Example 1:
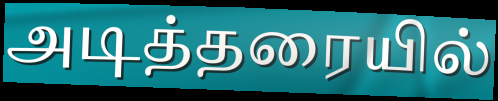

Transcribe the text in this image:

அடித்தரையில்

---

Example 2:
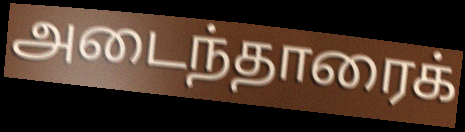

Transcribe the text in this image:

அடைந்தாரைக்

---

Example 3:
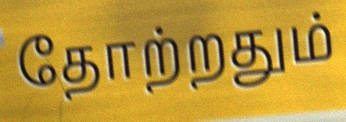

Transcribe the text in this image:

தோற்றதும்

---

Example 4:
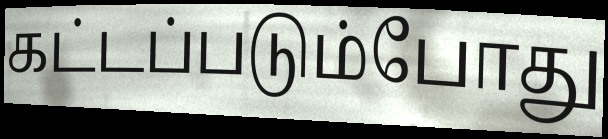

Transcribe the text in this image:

கட்டப்படும்போது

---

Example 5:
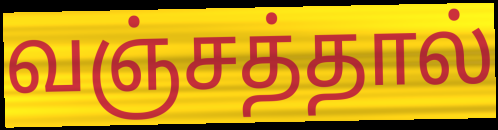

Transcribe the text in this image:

வஞ்சத்தால்